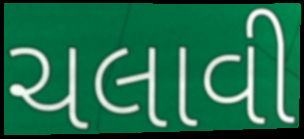
ચલાવી